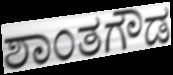
ಶಾಂತಗೌಡ